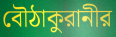
বৌঠাকুরানীর